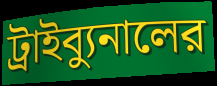
ট্রাইব্যুনালের